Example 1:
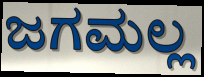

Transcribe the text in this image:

ಜಗಮಲ್ಲ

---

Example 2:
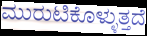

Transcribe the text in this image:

ಮುರುಟಿಕೊಳ್ಳುತ್ತದೆ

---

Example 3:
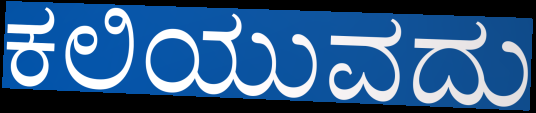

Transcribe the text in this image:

ಕಲಿಯುವದು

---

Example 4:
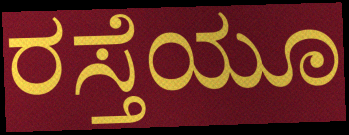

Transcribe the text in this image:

ರಸ್ತೆಯೂ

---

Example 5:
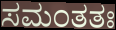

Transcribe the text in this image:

ಸಮಂತತಃ